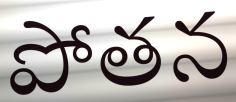
పోతన